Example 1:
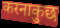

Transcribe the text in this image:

करनाकुछ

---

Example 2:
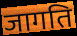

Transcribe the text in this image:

जागति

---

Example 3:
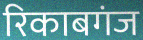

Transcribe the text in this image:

रिकाबगंज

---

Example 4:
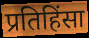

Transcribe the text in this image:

प्रतिहिंसा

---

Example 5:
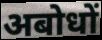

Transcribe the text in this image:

अबोधों